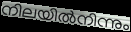
നിലയിൽനിന്നും